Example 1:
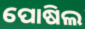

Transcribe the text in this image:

ପୋଷିଲ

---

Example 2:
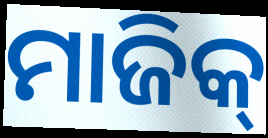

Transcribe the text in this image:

ମାଜିକ୍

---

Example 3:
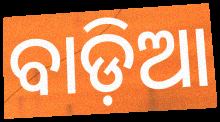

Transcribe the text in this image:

ବାଡ଼ିଆ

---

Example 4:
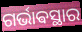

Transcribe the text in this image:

ଗର୍ଭାଵସ୍ଥାର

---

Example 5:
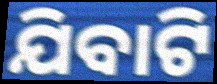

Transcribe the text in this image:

ଯିବାଟି